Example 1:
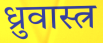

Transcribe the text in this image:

ध्रुवास्त्र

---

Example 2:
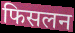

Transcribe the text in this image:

फिसलन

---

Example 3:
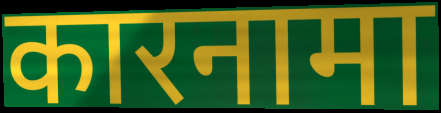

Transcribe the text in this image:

कारनामा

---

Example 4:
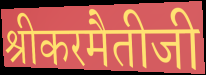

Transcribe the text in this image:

श्रीकरमैतीजी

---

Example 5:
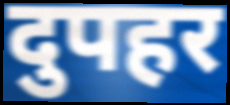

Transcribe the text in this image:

दुपहर